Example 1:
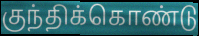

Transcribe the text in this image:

குந்திக்கொண்டு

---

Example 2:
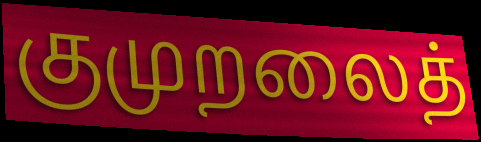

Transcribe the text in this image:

குமுறலைத்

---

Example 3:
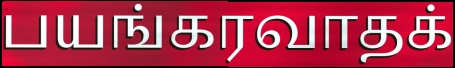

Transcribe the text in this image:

பயங்கரவாதக்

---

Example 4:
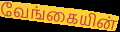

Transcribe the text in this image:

வேங்கையின்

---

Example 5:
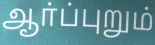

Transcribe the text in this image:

ஆர்ப்புறும்